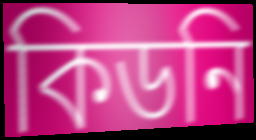
কিডনি